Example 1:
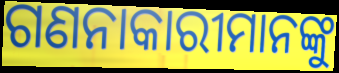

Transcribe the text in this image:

ଗଣନାକାରୀମାନଙ୍କୁ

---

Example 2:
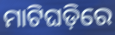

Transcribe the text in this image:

ମାଟିଘଡ଼ିରେ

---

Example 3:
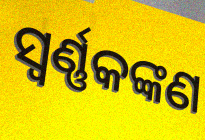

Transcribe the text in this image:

ସ୍ୱର୍ଣ୍ଣକଙ୍କଣ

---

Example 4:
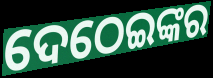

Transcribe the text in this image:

ଦେଠେଇଙ୍କର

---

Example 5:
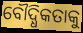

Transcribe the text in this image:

ବୌଦ୍ଧିକତାକୁ